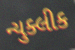
ન્યુક્લીક